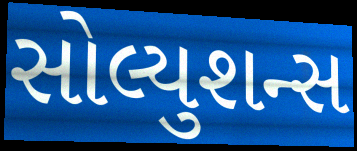
સોલ્યુશન્સ